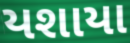
યશાયા